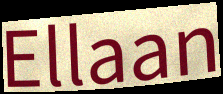
Ellaan